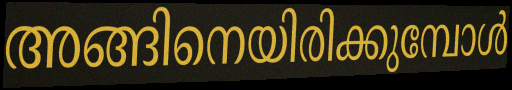
അങ്ങിനെയിരിക്കുമ്പോൾ